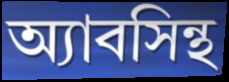
অ্যাবসিন্থ